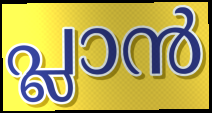
പ്ലാൻ